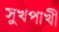
সুখপাখী